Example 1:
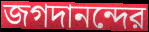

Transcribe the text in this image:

জগদানন্দের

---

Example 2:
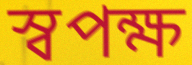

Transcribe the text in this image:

স্বপক্ষ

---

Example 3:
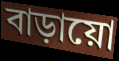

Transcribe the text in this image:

বাড়ায়ো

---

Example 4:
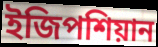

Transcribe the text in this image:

ইজিপশিয়ান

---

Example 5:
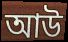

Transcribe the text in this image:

আউ